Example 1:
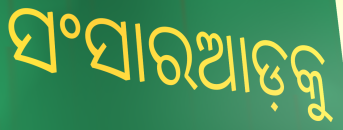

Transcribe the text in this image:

ସଂସାରଆଡ଼କୁ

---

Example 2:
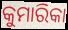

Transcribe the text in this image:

କୁମାରିକା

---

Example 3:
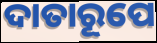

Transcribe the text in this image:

ଦାତାରୂପେ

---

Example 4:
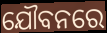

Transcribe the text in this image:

ଯୌବନରେ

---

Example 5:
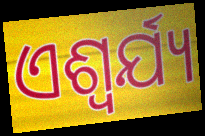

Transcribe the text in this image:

ଏଶ୍ଵର୍ଯ୍ୟ